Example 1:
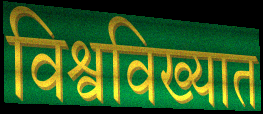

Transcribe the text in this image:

विश्वविख्यात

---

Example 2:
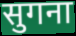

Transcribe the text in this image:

सुगना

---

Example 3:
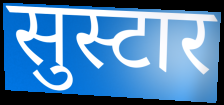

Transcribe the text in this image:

सुस्टार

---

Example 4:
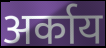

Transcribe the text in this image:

अर्काय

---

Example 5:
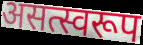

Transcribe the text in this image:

असत्स्वरूप